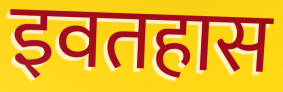
इवतहास